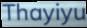
Thayiyu